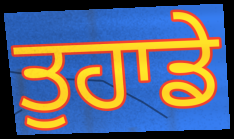
ਤੁਹਾਡੇ